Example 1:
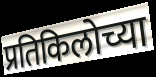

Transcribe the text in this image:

प्रतिकिलोच्या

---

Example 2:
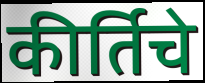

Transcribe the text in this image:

कीर्तिचे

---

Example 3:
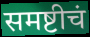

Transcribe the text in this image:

समष्टीचं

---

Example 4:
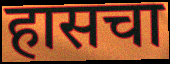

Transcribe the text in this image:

हासचा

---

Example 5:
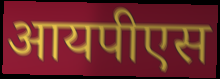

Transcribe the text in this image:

आयपीएस